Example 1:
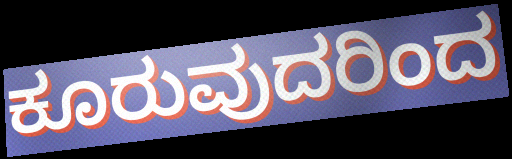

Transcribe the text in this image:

ಕೂರುವುದರಿಂದ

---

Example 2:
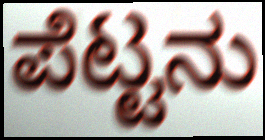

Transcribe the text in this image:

ಪೆಟ್ಟನು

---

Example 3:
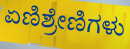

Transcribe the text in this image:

ಏಣಿಶ್ರೇಣಿಗಳು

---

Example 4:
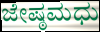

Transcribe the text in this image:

ಜೇಷ್ಠಮಧು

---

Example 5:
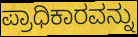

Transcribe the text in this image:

ಪ್ರಾಧಿಕಾರವನ್ನು